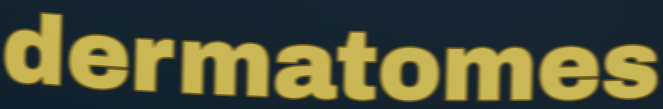
dermatomes